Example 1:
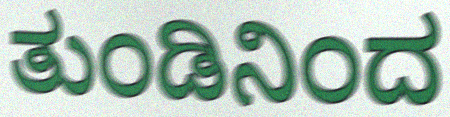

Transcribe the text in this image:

ತುಂಡಿನಿಂದ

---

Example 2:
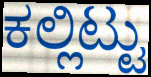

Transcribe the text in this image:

ಕಲ್ಲಿಟ್ಟು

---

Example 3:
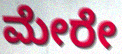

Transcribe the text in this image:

ಮೇರೇ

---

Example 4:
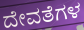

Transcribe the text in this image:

ದೇವತೆಗಳ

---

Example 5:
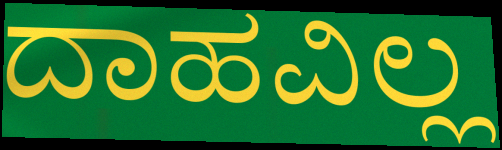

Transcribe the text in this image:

ದಾಹವಿಲ್ಲ